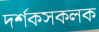
দৰ্শকসকলক